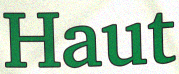
Haut